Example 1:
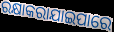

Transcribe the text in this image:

ରକ୍ଷାକରାଯାଇପାରେ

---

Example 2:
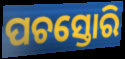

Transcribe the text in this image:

ପଚସ୍ତୋରି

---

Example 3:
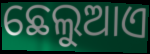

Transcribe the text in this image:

ଛେଲୁଆଏ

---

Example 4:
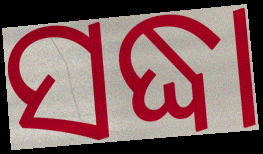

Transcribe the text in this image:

ସଦ୍ଧା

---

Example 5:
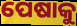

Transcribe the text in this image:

ପେଷାକୁ